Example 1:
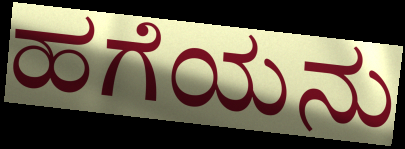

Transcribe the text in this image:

ಹಗೆಯನು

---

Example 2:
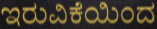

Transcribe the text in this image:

ಇರುವಿಕೆಯಿಂದ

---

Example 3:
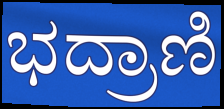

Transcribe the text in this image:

ಭದ್ರಾಣಿ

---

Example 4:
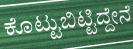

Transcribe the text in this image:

ಕೊಟ್ಟುಬಿಟ್ಟಿದ್ದೇನೆ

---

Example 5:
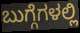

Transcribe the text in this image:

ಬುಗ್ಗೆಗಳಲ್ಲಿ